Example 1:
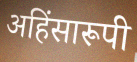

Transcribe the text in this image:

अहिंसारूपी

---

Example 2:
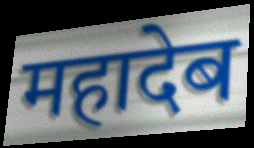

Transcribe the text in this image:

महादेब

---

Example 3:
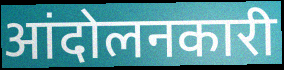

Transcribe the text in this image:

आंदोलनकारी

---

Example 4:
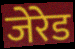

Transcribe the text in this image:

जेरेड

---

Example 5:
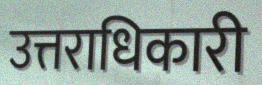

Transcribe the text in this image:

उत्तराधिकारी